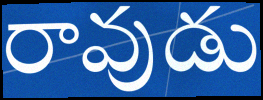
రావుడు